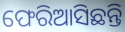
ଫେରିଆସିଛନ୍ତି